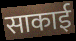
साकाई